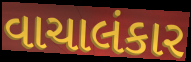
વાચાલંકાર